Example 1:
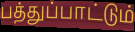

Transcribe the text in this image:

பத்துப்பாட்டும்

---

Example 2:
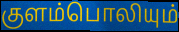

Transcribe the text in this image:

குளம்பொலியும்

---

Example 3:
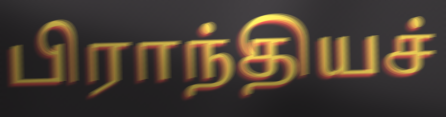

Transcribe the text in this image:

பிராந்தியச்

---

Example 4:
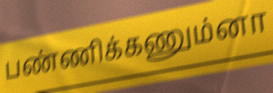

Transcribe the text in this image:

பண்ணிக்கணும்னா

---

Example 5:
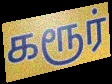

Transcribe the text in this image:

கரூர்